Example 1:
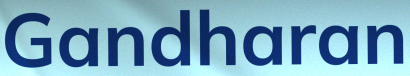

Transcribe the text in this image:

Gandharan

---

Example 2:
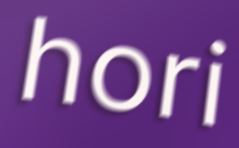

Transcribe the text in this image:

hori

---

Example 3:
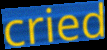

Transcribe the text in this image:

cried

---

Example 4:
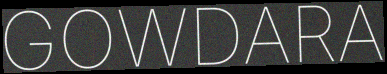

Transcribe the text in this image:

GOWDARA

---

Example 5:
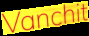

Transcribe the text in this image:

Vanchit